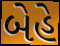
બેહે